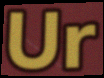
Ur